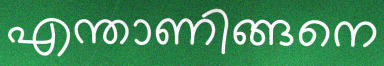
എന്താണിങ്ങനെ